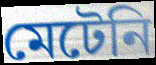
মেটেনি